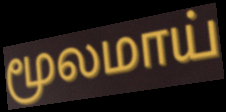
மூலமாய்